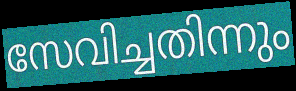
സേവിച്ചതിന്നും